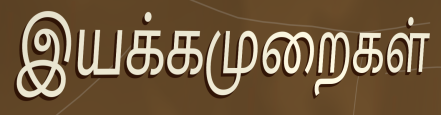
இயக்கமுறைகள்